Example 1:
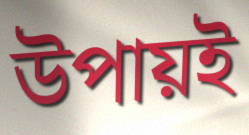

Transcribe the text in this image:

উপায়ই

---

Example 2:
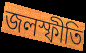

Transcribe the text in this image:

জলস্ফীতি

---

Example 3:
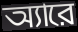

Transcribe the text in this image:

অ্যারে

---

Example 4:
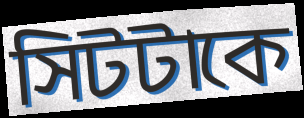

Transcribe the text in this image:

সিটটাকে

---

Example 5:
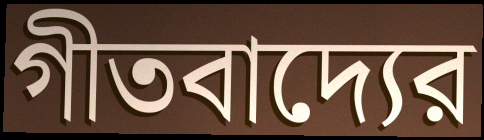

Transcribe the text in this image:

গীতবাদ্যের